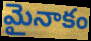
మైనాకం